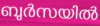
ബുർസയിൽ